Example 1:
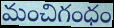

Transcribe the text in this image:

మంచిగంధం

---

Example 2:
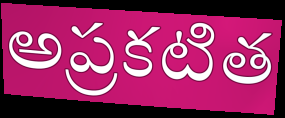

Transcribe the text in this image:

అప్రకటిత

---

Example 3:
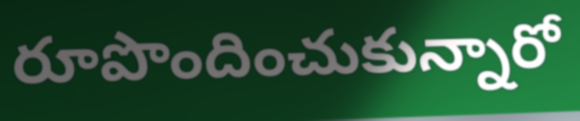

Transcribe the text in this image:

రూపొందించుకున్నారో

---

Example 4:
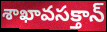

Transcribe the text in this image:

శాఖావసక్తాన్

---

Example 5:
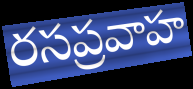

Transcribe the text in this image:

రసప్రవాహ